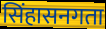
सिंहासनगता